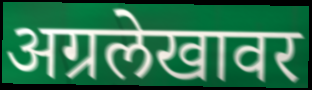
अग्रलेखावर